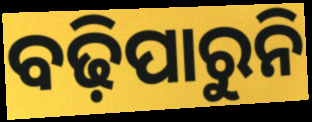
ବଢ଼ିପାରୁନି